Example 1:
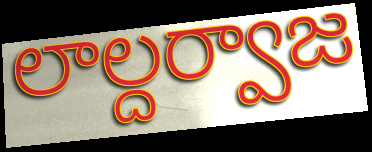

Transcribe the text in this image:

లాల్దర్వాజ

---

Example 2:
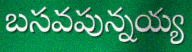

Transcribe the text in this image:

బసవపున్నయ్య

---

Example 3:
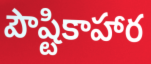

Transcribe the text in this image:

పౌష్టికాహార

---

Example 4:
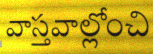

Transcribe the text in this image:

వాస్తవాల్లోంచి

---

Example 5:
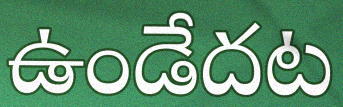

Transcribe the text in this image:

ఉండేదట